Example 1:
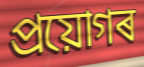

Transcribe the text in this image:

প্ৰয়োগৰ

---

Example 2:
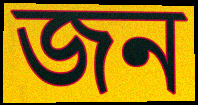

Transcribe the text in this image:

জন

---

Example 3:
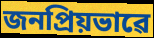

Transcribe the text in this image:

জনপ্ৰিয়ভাৱে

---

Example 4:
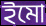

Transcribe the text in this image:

ইমো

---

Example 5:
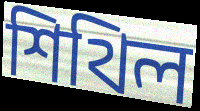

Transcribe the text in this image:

শিথিল